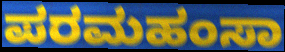
ಪರಮಹಂಸಾ